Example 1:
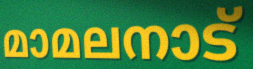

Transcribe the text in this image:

മാമലനാട്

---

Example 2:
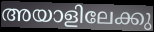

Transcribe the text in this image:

അയാളിലേക്കു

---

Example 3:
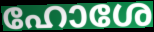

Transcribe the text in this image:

ഹോശേ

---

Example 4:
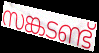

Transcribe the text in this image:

സങ്കടണ്ട്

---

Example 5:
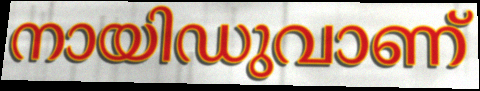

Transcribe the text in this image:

നായിഡുവാണ്